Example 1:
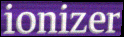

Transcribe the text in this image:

ionizer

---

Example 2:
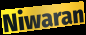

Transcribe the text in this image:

Niwaran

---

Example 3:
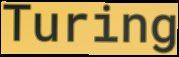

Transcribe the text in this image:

Turing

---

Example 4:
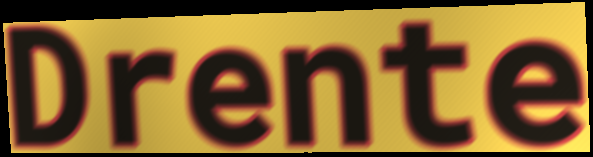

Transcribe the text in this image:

Drente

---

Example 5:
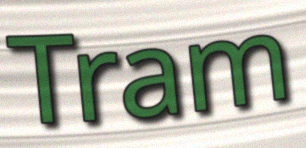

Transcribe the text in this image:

Tram